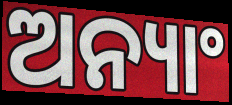
ଅନ୍ୟାଂ